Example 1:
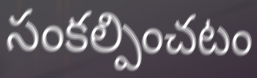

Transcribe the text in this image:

సంకల్పించటం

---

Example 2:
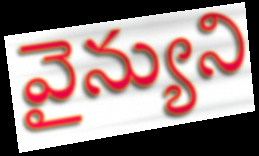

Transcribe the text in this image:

వైన్యుని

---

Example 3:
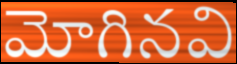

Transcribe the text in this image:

మోగినవి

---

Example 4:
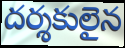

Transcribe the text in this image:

దర్శకులైన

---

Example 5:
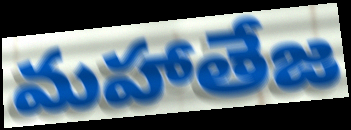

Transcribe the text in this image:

మహాతేజ